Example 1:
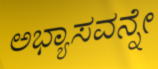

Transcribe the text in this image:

ಅಭ್ಯಾಸವನ್ನೇ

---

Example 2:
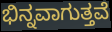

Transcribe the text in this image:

ಭಿನ್ನವಾಗುತ್ತವೆ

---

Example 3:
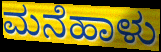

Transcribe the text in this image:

ಮನೆಹಾಳು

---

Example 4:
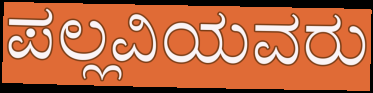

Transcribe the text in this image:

ಪಲ್ಲವಿಯವರು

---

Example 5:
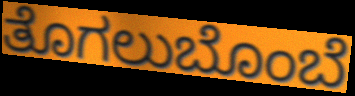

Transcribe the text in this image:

ತೊಗಲುಬೊಂಬೆ